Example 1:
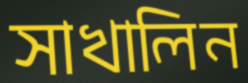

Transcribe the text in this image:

সাখালিন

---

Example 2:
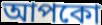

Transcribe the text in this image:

আপকো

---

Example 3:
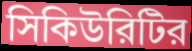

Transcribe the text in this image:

সিকিউরিটির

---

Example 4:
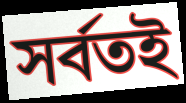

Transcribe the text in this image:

সর্বতই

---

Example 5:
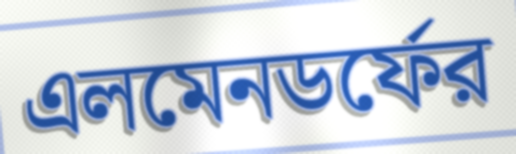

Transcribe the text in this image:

এলমেনডর্ফের